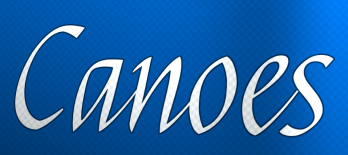
Canoes